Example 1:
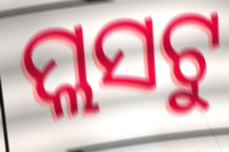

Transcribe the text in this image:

ପ୍ଲସଟୁ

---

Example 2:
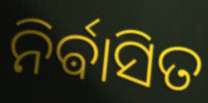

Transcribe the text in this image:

ନିର୍ଵାସିତ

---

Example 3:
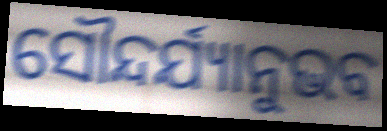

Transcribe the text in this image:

ସୌନ୍ଦର୍ଯ୍ୟାନୁଭବ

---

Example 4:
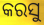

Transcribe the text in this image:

କରସୁ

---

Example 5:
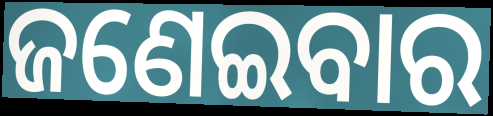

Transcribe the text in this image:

ଜଣେଇବାର